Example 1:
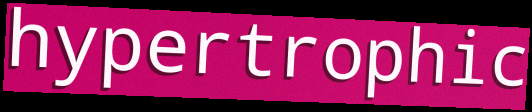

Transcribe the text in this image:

hypertrophic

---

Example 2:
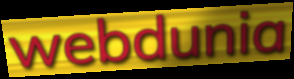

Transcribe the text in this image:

webdunia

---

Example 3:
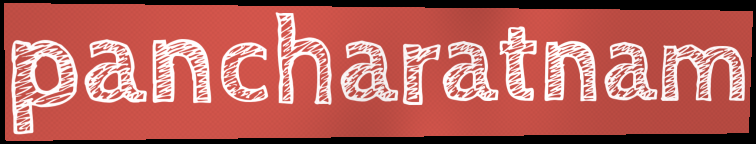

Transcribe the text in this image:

pancharatnam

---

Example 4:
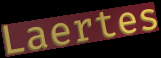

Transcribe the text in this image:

Laertes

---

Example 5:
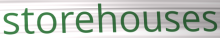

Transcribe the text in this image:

storehouses